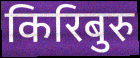
किरिबुरु